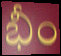
భీం